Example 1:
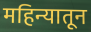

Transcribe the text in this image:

महिन्यातून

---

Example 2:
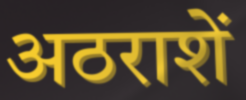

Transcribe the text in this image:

अठराशें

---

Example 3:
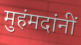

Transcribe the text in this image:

मुहंमदांनीं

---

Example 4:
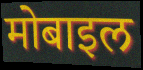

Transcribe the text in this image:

मोबाइल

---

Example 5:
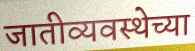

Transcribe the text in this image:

जातीव्यवस्थेच्या